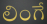
లింగే